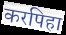
करपिहा